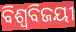
ବିଶ୍ଵବିଜୟୀ